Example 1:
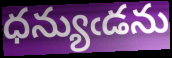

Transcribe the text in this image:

ధన్యుఁడను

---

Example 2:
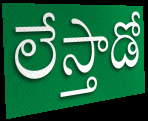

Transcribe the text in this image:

లేస్తాడో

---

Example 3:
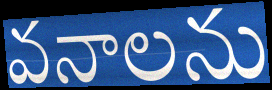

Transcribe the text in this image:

వనాలను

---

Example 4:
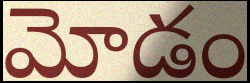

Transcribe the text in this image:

మోడం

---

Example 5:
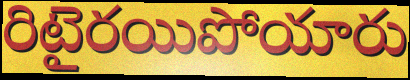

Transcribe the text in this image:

రిటైరయిపోయారు